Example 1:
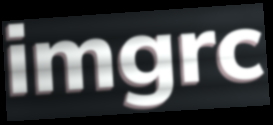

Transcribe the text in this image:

imgrc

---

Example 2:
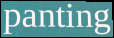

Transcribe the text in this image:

panting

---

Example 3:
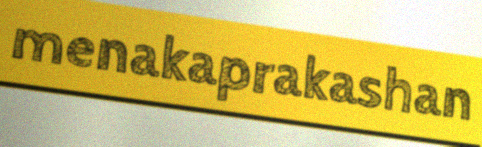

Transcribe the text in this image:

menakaprakashan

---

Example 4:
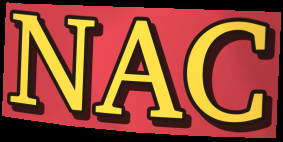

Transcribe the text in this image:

NAC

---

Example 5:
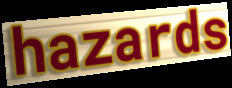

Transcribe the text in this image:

hazards